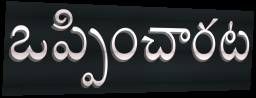
ఒప్పించారట